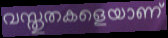
വസ്തുതകളെയാണ്